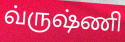
வ்ருஷ்ணி